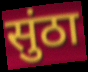
सुंठा